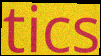
tics